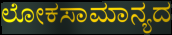
ಲೋಕಸಾಮಾನ್ಯದ